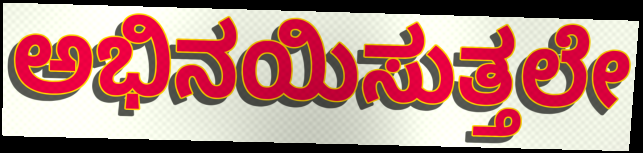
ಅಭಿನಯಿಸುತ್ತಲೇ